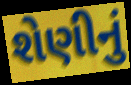
શેણીનું